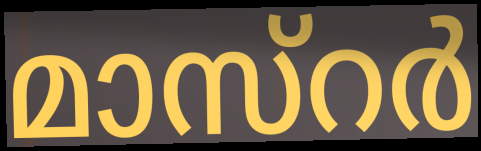
മാസ്റർ